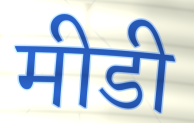
मीडी